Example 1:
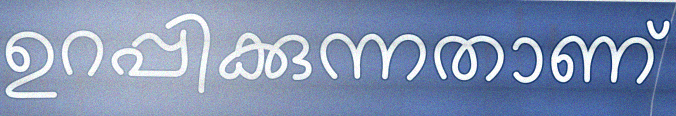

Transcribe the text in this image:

ഉറപ്പിക്കുന്നതാണ്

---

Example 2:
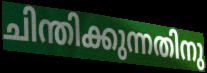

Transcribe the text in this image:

ചിന്തിക്കുന്നതിനു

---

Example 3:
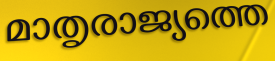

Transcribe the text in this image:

മാതൃരാജ്യത്തെ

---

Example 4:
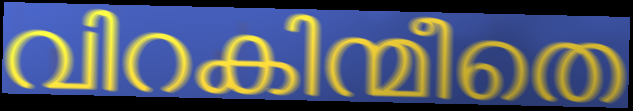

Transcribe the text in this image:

വിറകിന്മീതെ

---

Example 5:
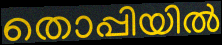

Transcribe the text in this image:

തൊപ്പിയിൽ